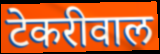
टेकरीवाल